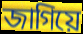
জাগিয়ে